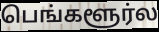
பெங்களூர்ல